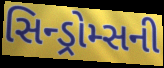
સિન્ડ્રોમ્સની